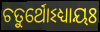
ଚତୁର୍ଥୋଽଧ୍ୟାୟଃ